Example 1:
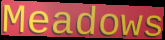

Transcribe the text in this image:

Meadows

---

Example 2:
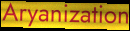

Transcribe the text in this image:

Aryanization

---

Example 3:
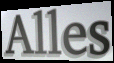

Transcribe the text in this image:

Alles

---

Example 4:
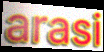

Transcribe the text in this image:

arasi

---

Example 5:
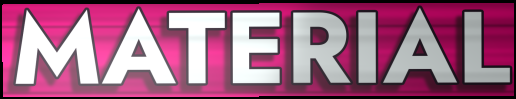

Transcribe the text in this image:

MATERIAL